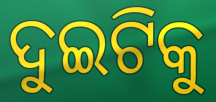
ଦୁଇଟିକୁ